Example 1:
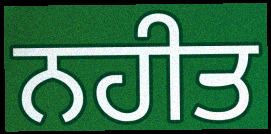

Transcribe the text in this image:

ਨਹੀਤ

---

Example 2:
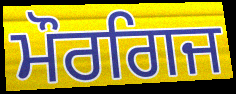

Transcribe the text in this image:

ਮੌਰਗਿਜ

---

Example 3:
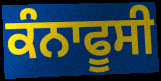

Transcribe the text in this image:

ਕੰਨਾਫੂਸੀ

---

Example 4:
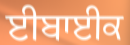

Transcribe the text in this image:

ਈਬਾਈਕ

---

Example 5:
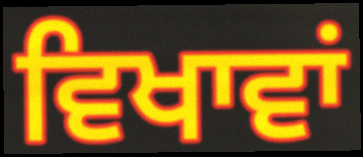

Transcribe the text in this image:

ਵਿਖਾਵਾਂ